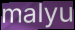
malyu